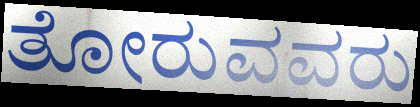
ತೋರುವವರು